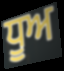
ਧੂਅ